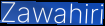
Zawahiri